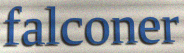
falconer